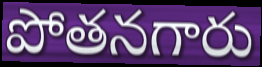
పోతనగారు